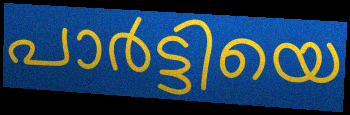
പാർട്ടിയെ